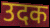
उदक